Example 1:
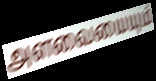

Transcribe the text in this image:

அளவையையும்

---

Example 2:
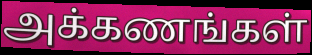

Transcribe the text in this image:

அக்கணங்கள்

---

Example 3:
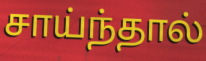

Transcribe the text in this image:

சாய்ந்தால்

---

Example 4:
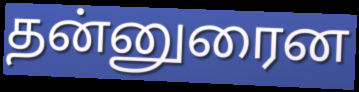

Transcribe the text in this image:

தன்னுரைன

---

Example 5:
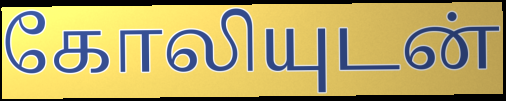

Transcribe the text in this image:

கோலியுடன்